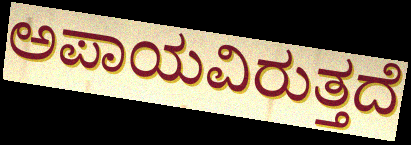
ಅಪಾಯವಿರುತ್ತದೆ